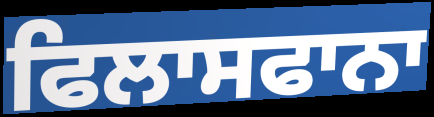
ਫਿਲਾਸਫਾਨਾ